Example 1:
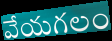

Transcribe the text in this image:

వేయగలం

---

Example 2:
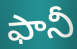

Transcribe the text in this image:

ఫానీ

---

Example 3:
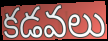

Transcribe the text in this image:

కడవలు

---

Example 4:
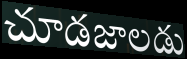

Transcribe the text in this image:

చూడజాలడు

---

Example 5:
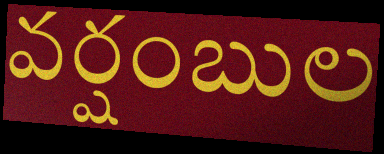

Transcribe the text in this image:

వర్షంబుల